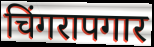
चिंगरापगार